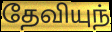
தேவியுந்